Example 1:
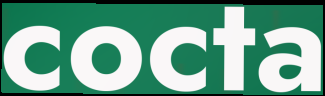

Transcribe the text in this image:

cocta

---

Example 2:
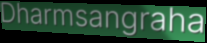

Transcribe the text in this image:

Dharmsangraha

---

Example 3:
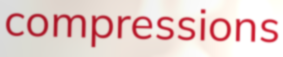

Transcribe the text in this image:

compressions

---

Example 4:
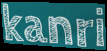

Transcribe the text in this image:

kanri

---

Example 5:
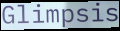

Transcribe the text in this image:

Glimpsis